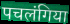
पचलंगिया